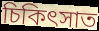
চিকিৎসাত